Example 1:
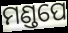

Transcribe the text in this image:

ମଣ୍ଡପେ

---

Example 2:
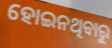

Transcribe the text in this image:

ହୋଇନଥିବାରୁ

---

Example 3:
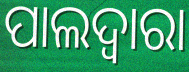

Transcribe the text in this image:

ପାଲଦ୍ୱାରା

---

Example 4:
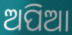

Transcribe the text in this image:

ଅପିଆ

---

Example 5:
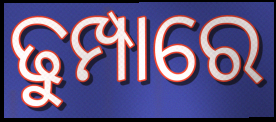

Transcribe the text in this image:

ଢୁମ୍ପାରେ